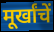
मूर्खांचें